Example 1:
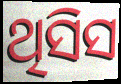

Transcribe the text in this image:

ଥିସିସ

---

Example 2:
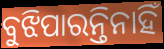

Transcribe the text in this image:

ବୁଝିପାରନ୍ତିନାହିଁ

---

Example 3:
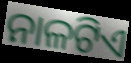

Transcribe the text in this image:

ନାଳଟିଏ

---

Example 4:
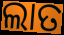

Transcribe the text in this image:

ଲାତ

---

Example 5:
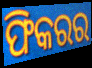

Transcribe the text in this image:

ଫିକରର